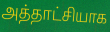
அத்தாட்சியாக